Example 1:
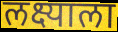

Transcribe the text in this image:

लक्ष्याला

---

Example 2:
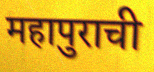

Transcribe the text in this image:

महापुराची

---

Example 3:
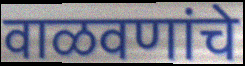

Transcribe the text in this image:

वाळवणांचे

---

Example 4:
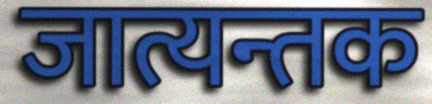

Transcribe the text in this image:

जात्यन्तक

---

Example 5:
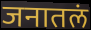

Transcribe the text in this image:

जनातलं